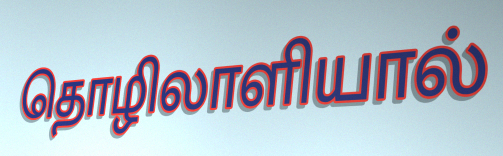
தொழிலாளியால்